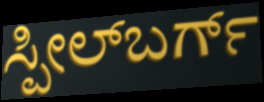
ಸ್ಪೀಲ್‌ಬರ್ಗ್